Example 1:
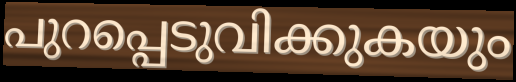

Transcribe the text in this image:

പുറപ്പെടുവിക്കുകയും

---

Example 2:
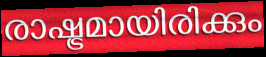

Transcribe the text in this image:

രാഷ്ട്രമായിരിക്കും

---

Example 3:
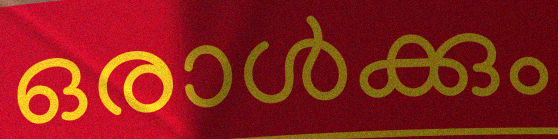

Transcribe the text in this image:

ഒരാൾക്കും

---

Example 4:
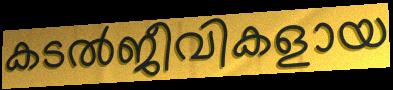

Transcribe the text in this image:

കടൽജീവികളായ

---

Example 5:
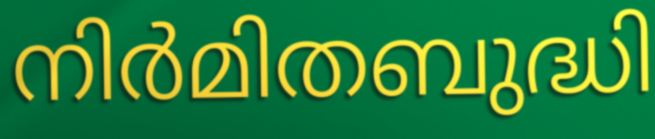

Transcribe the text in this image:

നിർമിതബുദ്ധി